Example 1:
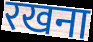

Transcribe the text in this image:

रखना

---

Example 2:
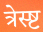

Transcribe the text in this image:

त्रेस्ष्ट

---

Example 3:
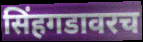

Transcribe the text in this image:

सिंहगडावरच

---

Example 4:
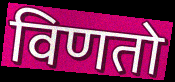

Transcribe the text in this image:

विणतो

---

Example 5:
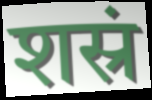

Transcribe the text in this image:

शस्रं